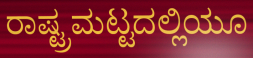
ರಾಷ್ಟ್ರಮಟ್ಟದಲ್ಲಿಯೂ